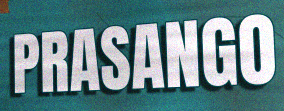
PRASANGO